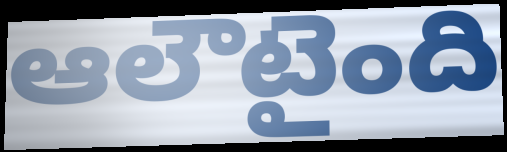
ఆలౌటైంది